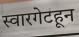
स्वारगेटहून